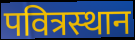
पवित्रस्‍थान